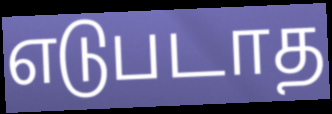
எடுபடாத